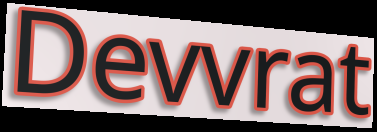
Devvrat